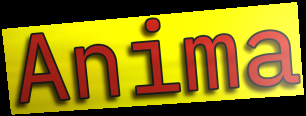
Anima